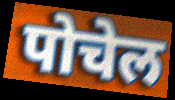
पोचेल